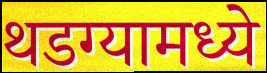
थडग्यामध्ये